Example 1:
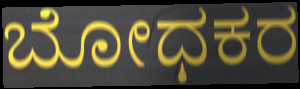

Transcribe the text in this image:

ಬೋಧಕರ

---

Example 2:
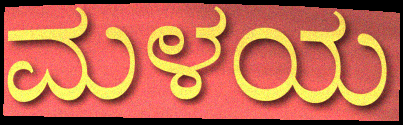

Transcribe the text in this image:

ಮಳಯ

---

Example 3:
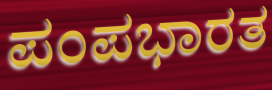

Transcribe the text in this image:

ಪಂಪಭಾರತ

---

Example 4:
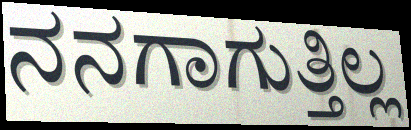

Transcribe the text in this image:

ನನಗಾಗುತ್ತಿಲ್ಲ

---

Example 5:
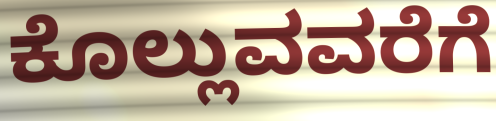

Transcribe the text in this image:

ಕೊಲ್ಲುವವರೆಗೆ